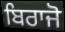
ਬਿਰਾਜੋ